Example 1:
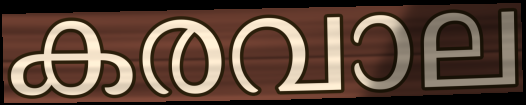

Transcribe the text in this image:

കരവാല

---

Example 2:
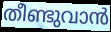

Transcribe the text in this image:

തീണ്ടുവാൻ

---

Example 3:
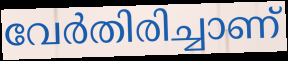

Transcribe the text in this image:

വേർതിരിച്ചാണ്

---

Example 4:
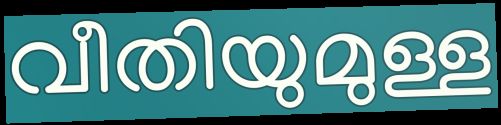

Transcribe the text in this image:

വീതിയുമുള്ള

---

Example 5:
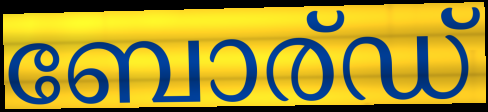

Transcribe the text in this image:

ബോര്ഡ്